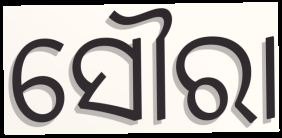
ସୌରା